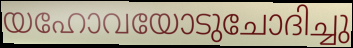
യഹോവയോടുചോദിച്ചു